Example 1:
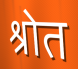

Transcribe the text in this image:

श्रोत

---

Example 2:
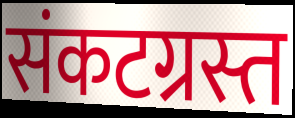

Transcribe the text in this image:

संकटग्रस्‍त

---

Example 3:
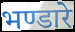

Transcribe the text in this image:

भण्डारे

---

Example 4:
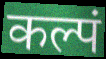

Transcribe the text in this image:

कल्पं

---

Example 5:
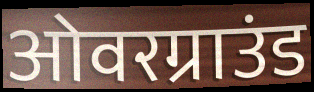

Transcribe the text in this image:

ओवरग्राउंड